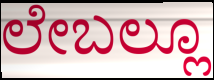
ಲೇಬಲ್ಲೂ